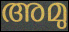
അമു